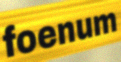
foenum